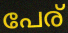
പേര്